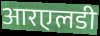
आरएलडी